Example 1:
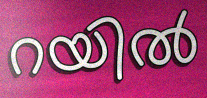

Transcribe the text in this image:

റയിൽ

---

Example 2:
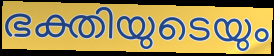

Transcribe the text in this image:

ഭക്തിയുടെയും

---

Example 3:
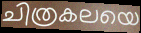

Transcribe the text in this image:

ചിത്രകലയെ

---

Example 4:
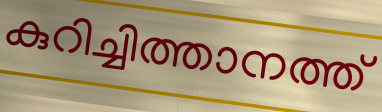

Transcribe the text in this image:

കുറിച്ചിത്താനത്ത്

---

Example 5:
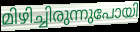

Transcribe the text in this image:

മിഴിച്ചിരുന്നുപോയി